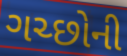
ગચ્છોની